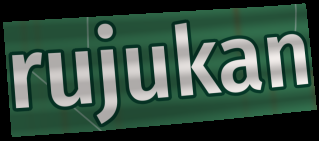
rujukan